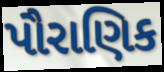
પૌરાણિક